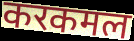
करकमल